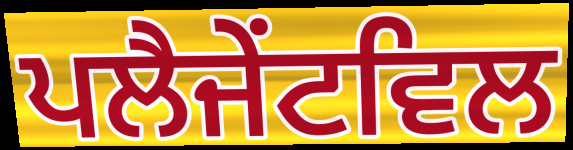
ਪਲੈਜੇਂਟਵਿਲ